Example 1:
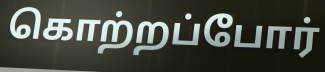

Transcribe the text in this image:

கொற்றப்போர்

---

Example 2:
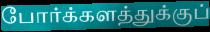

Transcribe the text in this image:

போர்க்களத்துக்குப்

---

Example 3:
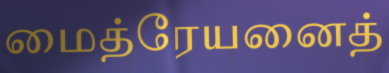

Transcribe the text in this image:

மைத்ரேயனைத்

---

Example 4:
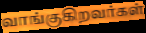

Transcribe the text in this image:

வாங்குகிறவர்கள்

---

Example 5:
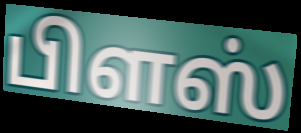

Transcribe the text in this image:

பிளஸ்